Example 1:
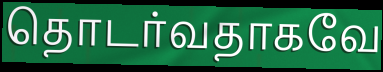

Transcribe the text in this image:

தொடர்வதாகவே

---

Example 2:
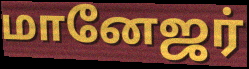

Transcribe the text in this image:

மானேஜர்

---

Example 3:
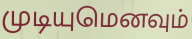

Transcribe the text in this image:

முடியுமெனவும்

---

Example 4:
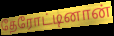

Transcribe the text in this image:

தேரோட்டினான்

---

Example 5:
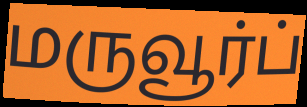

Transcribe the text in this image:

மருவூர்ப்